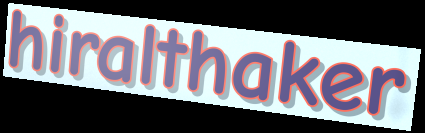
hiralthaker